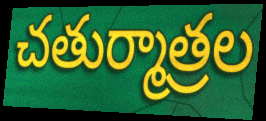
చతుర్మాత్రల